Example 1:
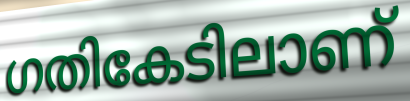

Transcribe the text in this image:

ഗതികേടിലാണ്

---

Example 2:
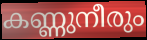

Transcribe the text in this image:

കണ്ണുനീരും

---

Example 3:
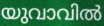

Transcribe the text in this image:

യുവാവിൽ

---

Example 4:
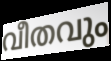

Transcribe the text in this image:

വീതവും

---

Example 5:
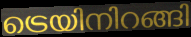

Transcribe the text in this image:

ട്രെയിനിറങ്ങി